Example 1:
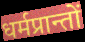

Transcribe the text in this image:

धर्मप्रान्तों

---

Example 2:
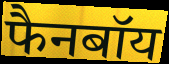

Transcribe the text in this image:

फैनबॉय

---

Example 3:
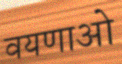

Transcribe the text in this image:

वयणाओ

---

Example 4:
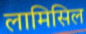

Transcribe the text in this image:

लामिसिल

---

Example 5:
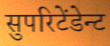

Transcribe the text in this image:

सुपरिटेंडेन्ट